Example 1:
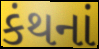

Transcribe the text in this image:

કંથનાં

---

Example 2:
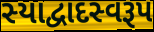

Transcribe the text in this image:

સ્યાદ્વાદસ્વરૂપ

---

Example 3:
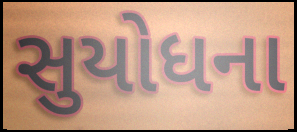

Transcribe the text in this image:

સુયોધના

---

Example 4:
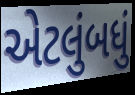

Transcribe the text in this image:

એટલુંબધું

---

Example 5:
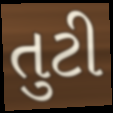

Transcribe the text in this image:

તુટી